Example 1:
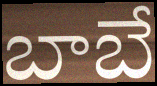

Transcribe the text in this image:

బాబే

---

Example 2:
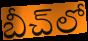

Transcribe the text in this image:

బీచ్‌లో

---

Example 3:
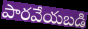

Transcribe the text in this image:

పారవేయబడి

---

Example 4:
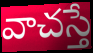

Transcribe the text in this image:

వాచస్తే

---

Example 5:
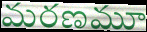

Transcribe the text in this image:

మరణమూ